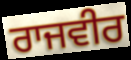
ਰਾਜਵੀਰ